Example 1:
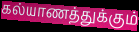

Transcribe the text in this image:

கல்யாணத்துக்கும்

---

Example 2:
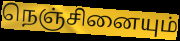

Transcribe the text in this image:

நெஞ்சினையும்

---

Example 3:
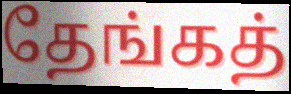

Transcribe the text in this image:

தேங்கத்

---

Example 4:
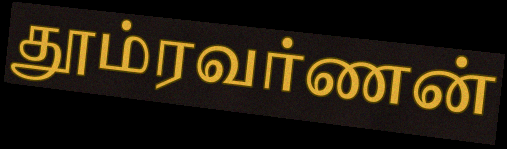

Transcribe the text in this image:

தூம்ரவர்ணன்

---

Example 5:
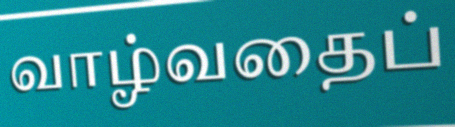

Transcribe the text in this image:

வாழ்வதைப்